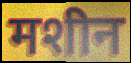
मशीन